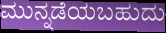
ಮುನ್ನಡೆಯಬಹುದು